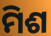
ମିଶ